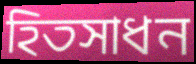
হিতসাধন